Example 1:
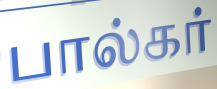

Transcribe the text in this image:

பால்கர்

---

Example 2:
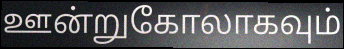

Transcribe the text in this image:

ஊன்றுகோலாகவும்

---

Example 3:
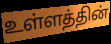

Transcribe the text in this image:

உள்ளத்தின்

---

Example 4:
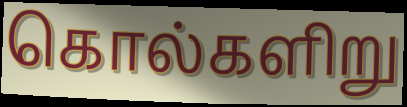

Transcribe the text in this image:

கொல்களிறு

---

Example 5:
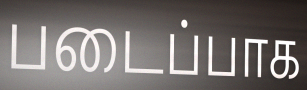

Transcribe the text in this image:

படைப்பாக